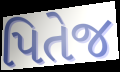
પિતેજ